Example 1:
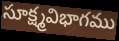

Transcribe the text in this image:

సూక్ష్మవిభాగము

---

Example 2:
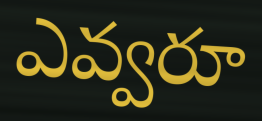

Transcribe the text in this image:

ఎవ్వరూ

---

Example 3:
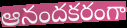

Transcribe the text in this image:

ఆనందకరంగా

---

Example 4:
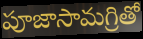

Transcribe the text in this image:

పూజాసామగ్రితో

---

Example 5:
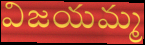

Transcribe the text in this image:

విజయమ్మ